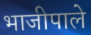
भाजीपाले